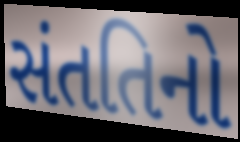
સંતતિનો